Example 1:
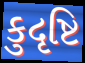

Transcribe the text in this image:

કુદૃષ્ટિ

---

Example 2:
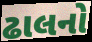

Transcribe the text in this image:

ઢાલનો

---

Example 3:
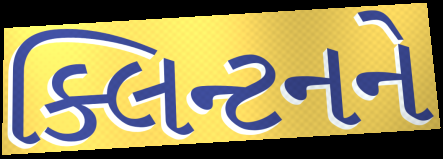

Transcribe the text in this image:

ક્લિન્ટનને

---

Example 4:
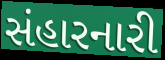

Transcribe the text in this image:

સંહારનારી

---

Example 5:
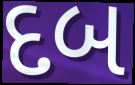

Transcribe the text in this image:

દબ